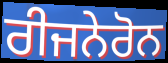
ਰੀਜਨੇਰੋਨ